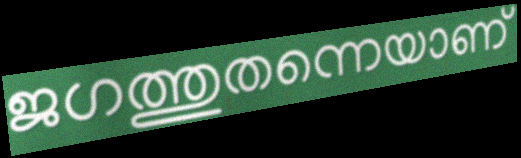
ജഗത്തുതന്നെയാണ്